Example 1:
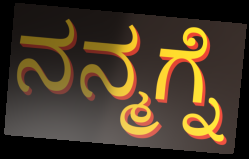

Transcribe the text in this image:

ನನ್ಮಗ್ನೆ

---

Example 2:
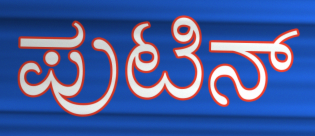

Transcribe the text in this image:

ಪುಟಿನ್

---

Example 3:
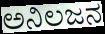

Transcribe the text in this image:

ಅನಿಲಜನ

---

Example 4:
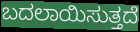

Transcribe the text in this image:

ಬದಲಾಯಿಸುತ್ತದೆ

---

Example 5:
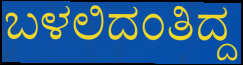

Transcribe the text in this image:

ಬಳಲಿದಂತಿದ್ದ